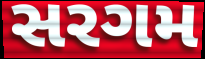
સરગમ